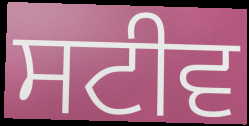
ਸਟੀਵ